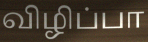
விழிப்பா